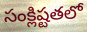
సంక్లిష్టతలో